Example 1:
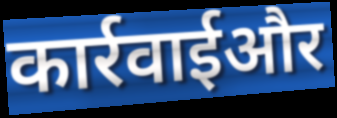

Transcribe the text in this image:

कार्रवाईऔर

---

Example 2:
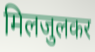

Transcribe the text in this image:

मिलजुलकर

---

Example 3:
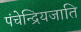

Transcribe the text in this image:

पंचेन्द्रियजाति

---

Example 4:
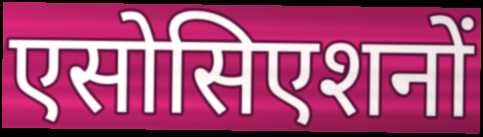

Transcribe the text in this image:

एसोसिएशनों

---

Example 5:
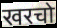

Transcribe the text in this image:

खरचो